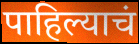
पाहिल्याचं